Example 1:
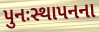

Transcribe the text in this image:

પુનઃસ્થાપનના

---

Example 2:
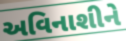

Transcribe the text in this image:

અવિનાશીને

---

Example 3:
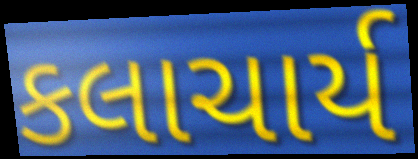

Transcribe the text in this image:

કલાચાર્ય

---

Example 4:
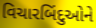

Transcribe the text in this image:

વિચારબિંદુઓને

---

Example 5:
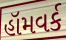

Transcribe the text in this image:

હૉમવર્ક